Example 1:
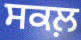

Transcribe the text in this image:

ਸਕਲ਼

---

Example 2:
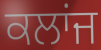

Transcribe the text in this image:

ਕਲਾਂਜ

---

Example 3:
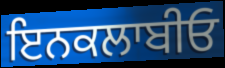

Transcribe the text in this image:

ਇਨਕਲਾਬੀਓ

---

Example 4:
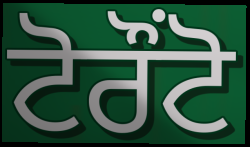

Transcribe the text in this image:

ਟੋਰੌੰਟੋ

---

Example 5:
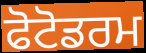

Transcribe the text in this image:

ਫੋਟੋਡਰਮ